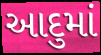
આદુમાં